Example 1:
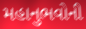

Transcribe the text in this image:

મહાનુભવોની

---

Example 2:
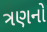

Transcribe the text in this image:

ત્રણનો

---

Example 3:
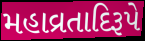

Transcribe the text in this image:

મહાવ્રતાદિરૂપે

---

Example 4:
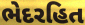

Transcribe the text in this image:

ભેદરહિત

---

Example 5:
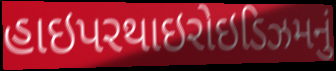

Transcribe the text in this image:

હાઇપરથાઇરોઇડિઝમનું